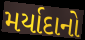
મર્યાદાનો